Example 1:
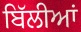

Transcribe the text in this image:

ਬਿੱਲੀਆਂ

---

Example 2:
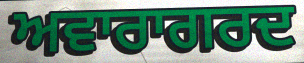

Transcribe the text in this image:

ਅਵਾਰਾਗਰਦ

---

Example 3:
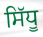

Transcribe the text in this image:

ਸਿੱਧੂ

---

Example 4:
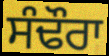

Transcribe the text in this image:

ਸੰਢੌਰਾ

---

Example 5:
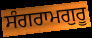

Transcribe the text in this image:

ਸੰਗਰਾਮਗੁਰੂ